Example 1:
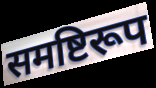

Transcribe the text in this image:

समष्टिरूप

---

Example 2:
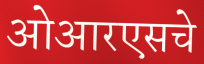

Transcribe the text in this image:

ओआरएसचे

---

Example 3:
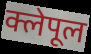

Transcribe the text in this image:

क्लेपूल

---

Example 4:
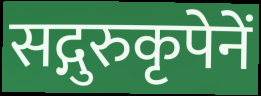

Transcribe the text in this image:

सद्गुरुकृपेनें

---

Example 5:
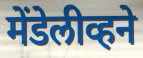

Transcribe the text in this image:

मेंडेलीव्हने